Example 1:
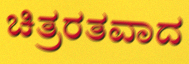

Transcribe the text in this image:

ಚಿತ್ರರತವಾದ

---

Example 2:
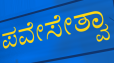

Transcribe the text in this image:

ಪವೇಸೇತ್ವಾ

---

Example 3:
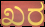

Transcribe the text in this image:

ಖರ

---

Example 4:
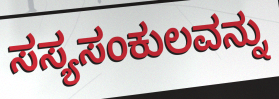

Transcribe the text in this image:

ಸಸ್ಯಸಂಕುಲವನ್ನು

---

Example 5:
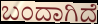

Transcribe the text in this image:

ಬಂದಾಗಿದೆ